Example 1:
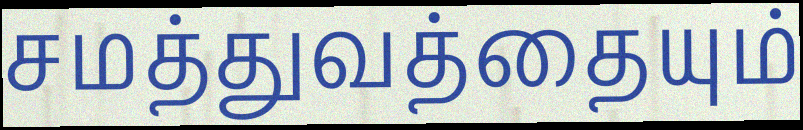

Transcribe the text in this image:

சமத்துவத்தையும்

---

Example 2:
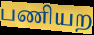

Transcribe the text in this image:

பணியற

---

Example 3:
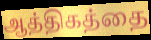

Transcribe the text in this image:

ஆத்திகத்தை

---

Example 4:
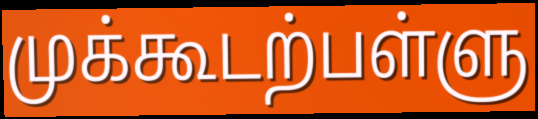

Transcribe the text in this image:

முக்கூடற்பள்ளு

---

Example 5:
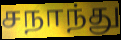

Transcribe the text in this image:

சநாந்து